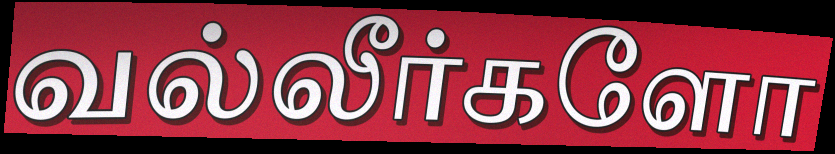
வல்லீர்களோ